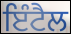
ਇੰਟੈਲ